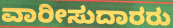
ವಾರೀಸುದಾರರು